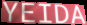
YEIDA